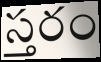
స్తరం